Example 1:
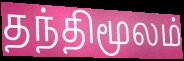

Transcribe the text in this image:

தந்திமூலம்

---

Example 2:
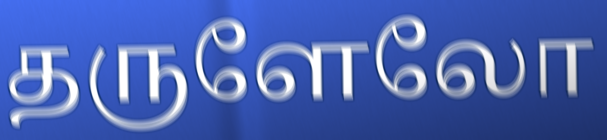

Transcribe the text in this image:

தருளேலோ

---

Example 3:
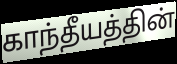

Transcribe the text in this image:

காந்தீயத்தின்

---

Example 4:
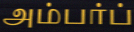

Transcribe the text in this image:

அம்பர்ப்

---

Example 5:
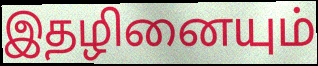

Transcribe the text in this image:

இதழினையும்